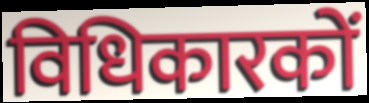
विधिकारकों